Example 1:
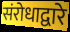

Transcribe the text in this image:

संरोधाद्वारे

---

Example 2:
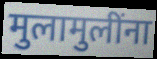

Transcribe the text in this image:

मुलामुलींना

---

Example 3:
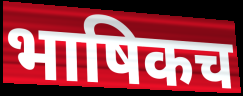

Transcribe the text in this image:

भाषिकच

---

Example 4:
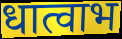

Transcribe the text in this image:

धात्वाभ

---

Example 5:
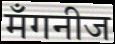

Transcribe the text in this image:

मँगनीज